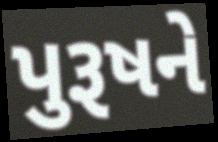
પુરૂષને